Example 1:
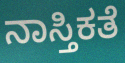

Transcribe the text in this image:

ನಾಸ್ತಿಕತೆ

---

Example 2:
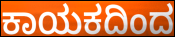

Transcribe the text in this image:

ಕಾಯಕದಿಂದ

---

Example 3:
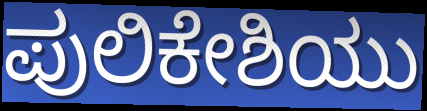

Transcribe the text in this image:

ಪುಲಿಕೇಶಿಯು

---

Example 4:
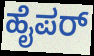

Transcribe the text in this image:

ಹೈಪರ್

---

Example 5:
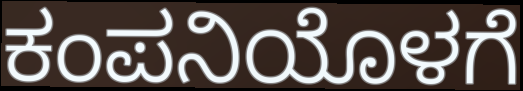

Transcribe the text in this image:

ಕಂಪನಿಯೊಳಗೆ